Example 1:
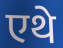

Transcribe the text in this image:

एथे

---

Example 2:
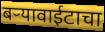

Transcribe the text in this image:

बऱ्यावाईटाचा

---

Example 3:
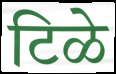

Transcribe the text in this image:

टिळे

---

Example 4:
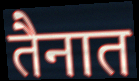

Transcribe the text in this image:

तैनात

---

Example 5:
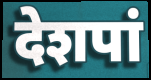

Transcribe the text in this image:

देशपां